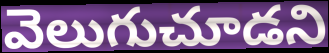
వెలుగుచూడని